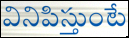
వినిపిస్తుంటే